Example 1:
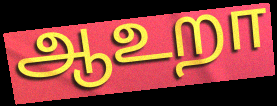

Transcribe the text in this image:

ஆஉறா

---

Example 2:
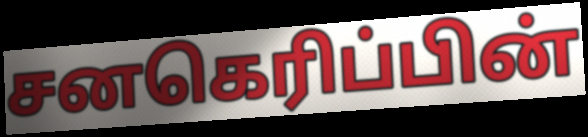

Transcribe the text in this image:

சனகெரிப்பின்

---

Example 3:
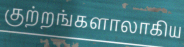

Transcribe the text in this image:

குற்றங்களாலாகிய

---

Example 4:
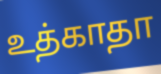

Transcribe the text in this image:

உத்காதா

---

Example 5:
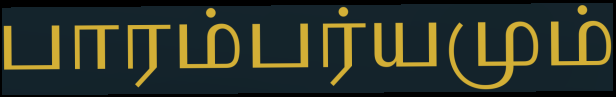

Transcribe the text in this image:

பாரம்பர்யமும்